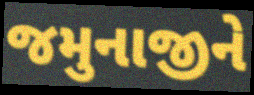
જમુનાજીને